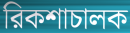
রিকশাচালক